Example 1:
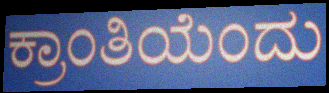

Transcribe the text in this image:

ಕ್ರಾಂತಿಯೆಂದು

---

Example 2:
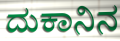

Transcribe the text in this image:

ದುಕಾನಿನ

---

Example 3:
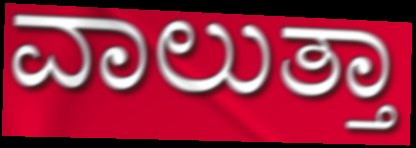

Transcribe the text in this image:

ವಾಲುತ್ತಾ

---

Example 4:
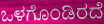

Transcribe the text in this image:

ಒಳಗೊಂಡಿರದೆ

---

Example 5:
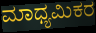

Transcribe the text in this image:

ಮಾಧ್ಯಮಿಕರ